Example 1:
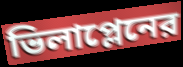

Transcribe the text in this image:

ভিলাপ্লেনের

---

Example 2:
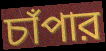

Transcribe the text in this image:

চাঁপার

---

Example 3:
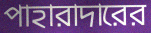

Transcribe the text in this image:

পাহারাদারের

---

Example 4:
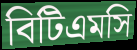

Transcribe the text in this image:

বিটিএমসি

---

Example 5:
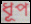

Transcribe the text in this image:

ধূপ